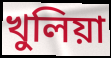
খুলিয়া